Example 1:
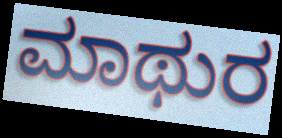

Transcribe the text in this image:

ಮಾಥುರ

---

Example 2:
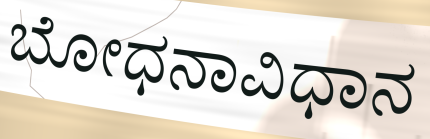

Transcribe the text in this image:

ಬೋಧನಾವಿಧಾನ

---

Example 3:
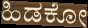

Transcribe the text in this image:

ಹಿಡಕೋ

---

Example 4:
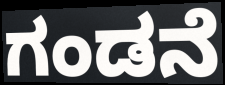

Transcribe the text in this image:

ಗಂಡನೆ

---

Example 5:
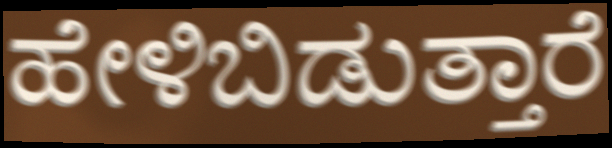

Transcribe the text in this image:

ಹೇಳಿಬಿಡುತ್ತಾರೆ